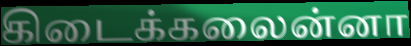
கிடைக்கலைன்னா